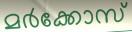
മർക്കോസ്